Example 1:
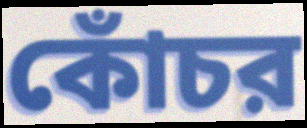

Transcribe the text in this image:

কোঁচর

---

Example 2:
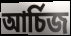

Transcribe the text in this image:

আর্চিজ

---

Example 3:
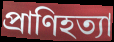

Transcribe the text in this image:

প্রাণিহত্যা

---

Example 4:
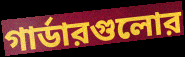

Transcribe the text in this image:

গার্ডারগুলোর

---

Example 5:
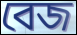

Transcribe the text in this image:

বেজ